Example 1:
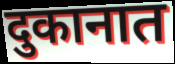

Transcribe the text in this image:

दुकानात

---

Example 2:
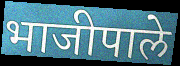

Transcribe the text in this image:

भाजीपाले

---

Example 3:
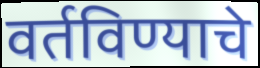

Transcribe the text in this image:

वर्तविण्याचे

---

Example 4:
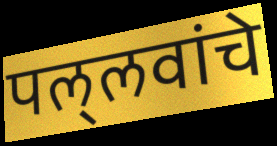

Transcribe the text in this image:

पल्लवांचे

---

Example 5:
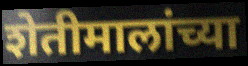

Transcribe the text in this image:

शेतीमालांच्या